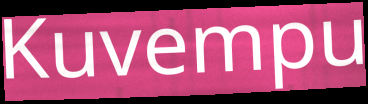
Kuvempu